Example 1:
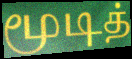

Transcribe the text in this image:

மூடித்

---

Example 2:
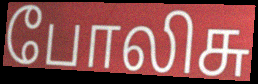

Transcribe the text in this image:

போலிசு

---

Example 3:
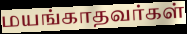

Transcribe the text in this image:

மயங்காதவர்கள்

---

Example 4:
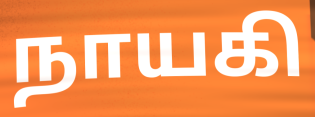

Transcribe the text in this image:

நாயகி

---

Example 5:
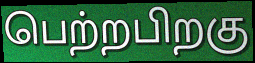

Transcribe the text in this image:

பெற்றபிறகு